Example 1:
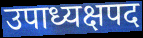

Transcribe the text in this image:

उपाध्यक्षपद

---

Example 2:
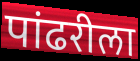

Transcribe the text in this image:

पांढरीला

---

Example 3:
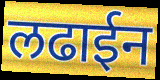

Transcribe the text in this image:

लढाईन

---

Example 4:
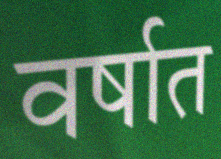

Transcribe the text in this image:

वर्षात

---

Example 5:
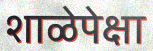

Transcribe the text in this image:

शाळेपेक्षा